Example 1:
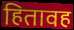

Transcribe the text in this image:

हितावह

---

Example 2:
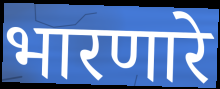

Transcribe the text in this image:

भारणारे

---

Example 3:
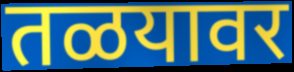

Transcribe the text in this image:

तळयावर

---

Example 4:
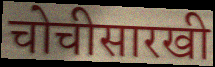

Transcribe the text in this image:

चोचीसारखी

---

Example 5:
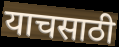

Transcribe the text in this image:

याचसाठी